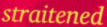
straitened